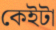
কেইটা